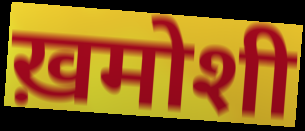
ख़मोशी